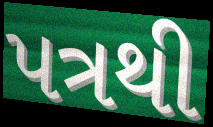
પત્રથી